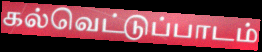
கல்வெட்டுப்பாடம்